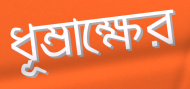
ধূম্রাক্ষের